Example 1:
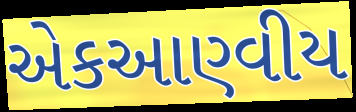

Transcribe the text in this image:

એકઆણ્વીય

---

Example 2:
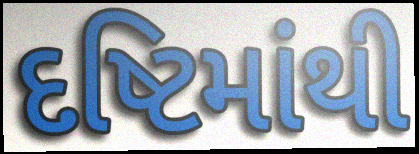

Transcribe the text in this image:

દષ્ટિમાંથી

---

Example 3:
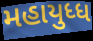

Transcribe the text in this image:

મહાયુધ્ધ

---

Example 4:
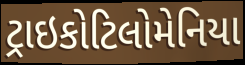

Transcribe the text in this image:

ટ્રાઇકોટિલોમેનિયા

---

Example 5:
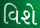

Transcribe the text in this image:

વિશે